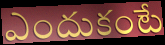
ఎందుకంటే